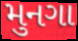
મુનગા